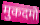
मुकदमो